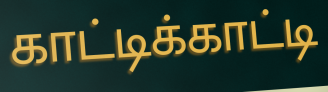
காட்டிக்காட்டி